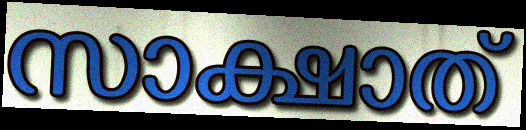
സാക്ഷാത്